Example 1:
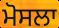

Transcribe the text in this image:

ਮੋਸਲਾ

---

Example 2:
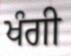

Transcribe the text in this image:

ਖੰਗੀ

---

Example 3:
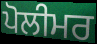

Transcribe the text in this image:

ਪੋਲੀਮਰ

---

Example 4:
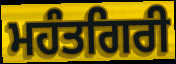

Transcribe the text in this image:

ਮਹੰਤਗਿਰੀ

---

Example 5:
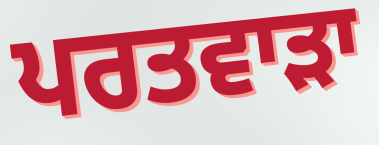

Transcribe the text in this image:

ਪਰਤਵਾੜਾ